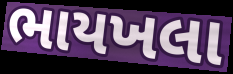
ભાયખલા